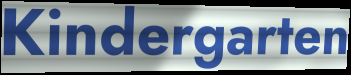
Kindergarten